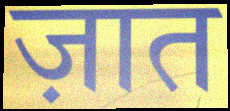
ज़ात